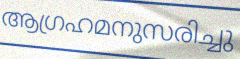
ആഗ്രഹമനുസരിച്ചു